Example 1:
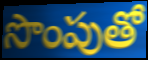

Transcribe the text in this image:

సొంపుతో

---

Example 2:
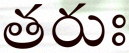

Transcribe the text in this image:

తరుః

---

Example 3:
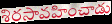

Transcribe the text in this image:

శిరసావహించాడు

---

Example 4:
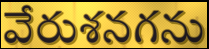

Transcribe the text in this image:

వేరుశనగను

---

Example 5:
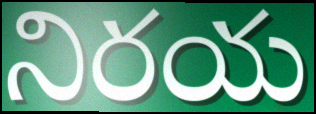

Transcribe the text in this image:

నిరయ